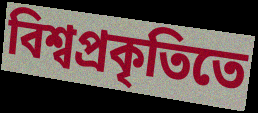
বিশ্বপ্রকৃতিতে